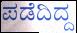
ಪಡೆದಿದ್ದ